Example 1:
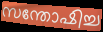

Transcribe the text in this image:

സന്തോഷിച്ച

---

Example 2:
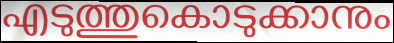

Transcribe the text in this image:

എടുത്തുകൊടുക്കാനും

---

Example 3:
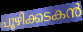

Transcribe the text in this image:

പൂഴിക്കടകൻ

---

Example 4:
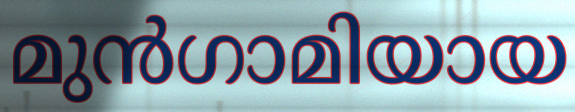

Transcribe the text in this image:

മുൻഗാമിയായ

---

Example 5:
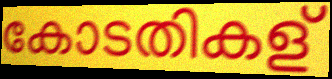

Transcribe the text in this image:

കോടതികള്